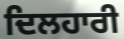
ਦਿਲਹਾਰੀ